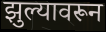
झुल्यावरून